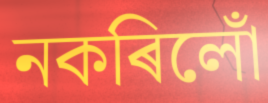
নকৰিলোঁ